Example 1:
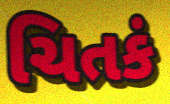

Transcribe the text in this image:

ચિતકં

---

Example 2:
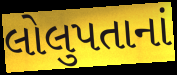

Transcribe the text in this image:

લોલુપતાનાં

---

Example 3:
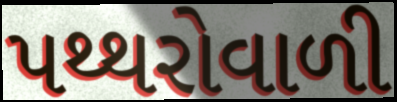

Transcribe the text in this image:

પથ્થરોવાળી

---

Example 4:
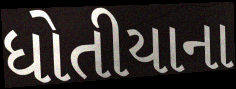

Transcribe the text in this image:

ધોતીયાના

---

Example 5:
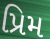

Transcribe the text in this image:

પ્રિમ